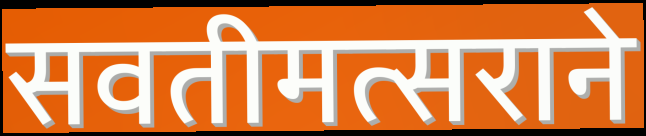
सवतीमत्सराने